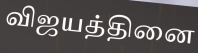
விஜயத்தினை